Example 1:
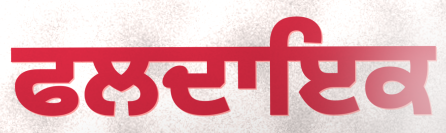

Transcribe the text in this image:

ਫਲਦਾਇਕ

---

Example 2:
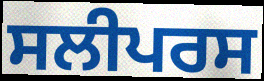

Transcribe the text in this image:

ਸਲੀਪਰਸ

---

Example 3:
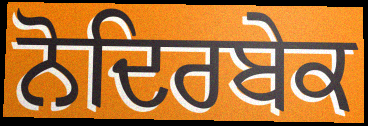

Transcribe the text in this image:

ਨੋਦਿਰਬੇਕ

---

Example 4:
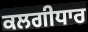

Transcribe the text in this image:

ਕਲਗੀਧਾਰ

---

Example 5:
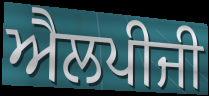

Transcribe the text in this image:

ਐਲਪੀਜੀ